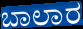
ಬಾಲಾರ